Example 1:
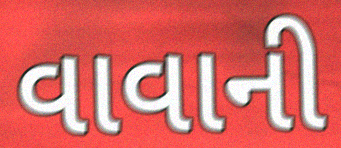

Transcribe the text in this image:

વાવાની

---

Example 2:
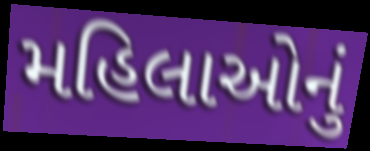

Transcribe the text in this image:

મહિલાઓનું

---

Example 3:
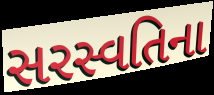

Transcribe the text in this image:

સરસ્વતિના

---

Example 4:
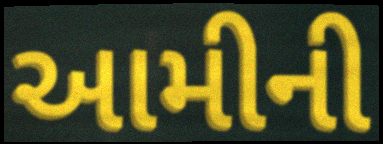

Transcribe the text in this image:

આમીની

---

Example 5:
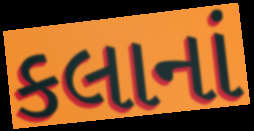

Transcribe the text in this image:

કલાનાં